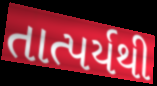
તાત્પર્યથી